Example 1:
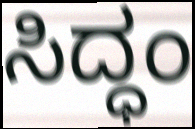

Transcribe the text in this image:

ಸಿದ್ಧಂ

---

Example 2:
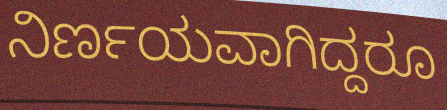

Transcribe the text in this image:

ನಿರ್ಣಯವಾಗಿದ್ದರೂ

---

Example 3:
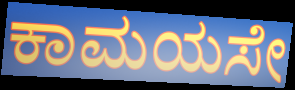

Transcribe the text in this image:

ಕಾಮಯಸೇ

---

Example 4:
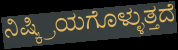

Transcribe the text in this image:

ನಿಷ್ಕ್ರಿಯಗೊಳ್ಳುತ್ತದೆ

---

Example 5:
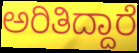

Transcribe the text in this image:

ಅರಿತಿದ್ದಾರೆ